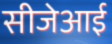
सीजेआई